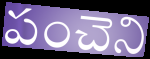
పంచెని